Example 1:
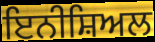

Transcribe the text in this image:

ਇਨੀਸ਼ਿਅਲ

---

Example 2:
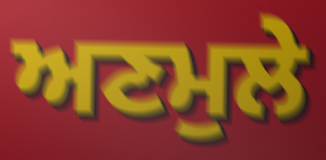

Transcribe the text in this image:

ਅਣਮੁਲੇ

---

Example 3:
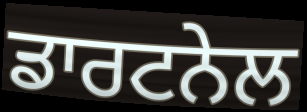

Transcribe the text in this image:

ਡਾਰਟਨੇਲ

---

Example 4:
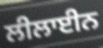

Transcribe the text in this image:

ਲੀਲਾਈਨ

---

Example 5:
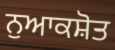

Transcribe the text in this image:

ਨੁਆਕਸ਼ੋਤ